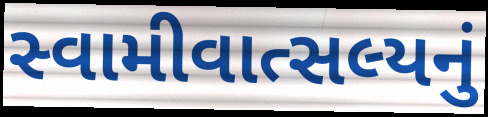
સ્વામીવાત્સલ્યનું